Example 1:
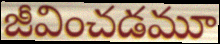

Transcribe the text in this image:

జీవించడమూ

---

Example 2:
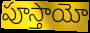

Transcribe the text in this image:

పూస్తాయో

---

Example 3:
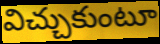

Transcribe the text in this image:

విచ్చుకుంటూ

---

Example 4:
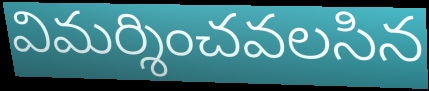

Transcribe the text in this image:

విమర్శించవలసిన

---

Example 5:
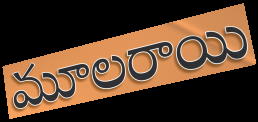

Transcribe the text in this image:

మూలరాయి